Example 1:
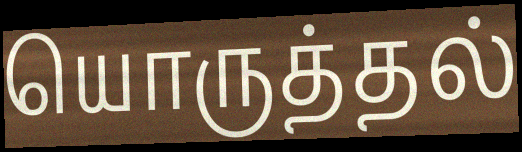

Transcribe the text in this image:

யொருத்தல்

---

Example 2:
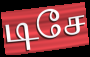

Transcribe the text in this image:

டிசே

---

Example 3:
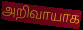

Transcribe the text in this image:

அறிவாயாக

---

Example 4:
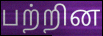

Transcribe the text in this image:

பற்றின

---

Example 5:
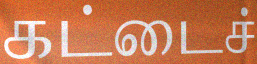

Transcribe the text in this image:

கட்டைச்